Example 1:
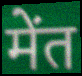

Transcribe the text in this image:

मेंत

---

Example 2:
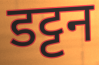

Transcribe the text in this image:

डट्टन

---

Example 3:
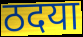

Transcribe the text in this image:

ठदया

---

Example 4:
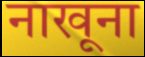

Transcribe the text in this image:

नाखूना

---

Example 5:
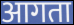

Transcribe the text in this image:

आगता